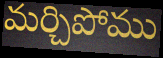
మర్చిపోము